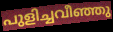
പുളിച്ചവീഞ്ഞു